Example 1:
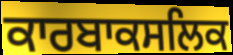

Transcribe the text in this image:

ਕਾਰਬਾਕਸਲਿਕ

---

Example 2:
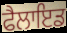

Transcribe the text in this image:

ਫੈਲਾਇਡ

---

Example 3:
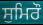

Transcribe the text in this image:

ਸੁਮਿਰੌ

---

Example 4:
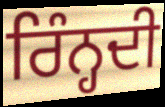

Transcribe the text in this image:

ਰਿੰਨ੍ਹਦੀ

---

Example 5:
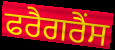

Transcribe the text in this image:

ਫਰੈਗਰੈਂਸ